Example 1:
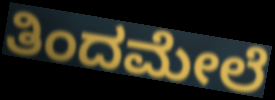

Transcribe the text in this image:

ತಿಂದಮೇಲೆ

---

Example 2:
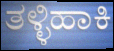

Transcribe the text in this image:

ತಳ್ಳಿಹಾಕಿ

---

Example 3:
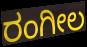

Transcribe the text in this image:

ರಂಗೀಲ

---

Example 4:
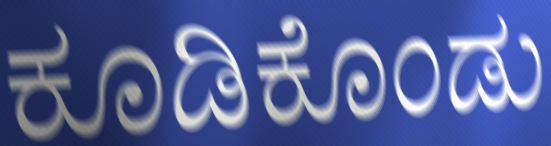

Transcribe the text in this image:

ಕೂಡಿಕೊಂಡು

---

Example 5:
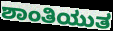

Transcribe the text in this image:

ಶಾಂತಿಯುತ